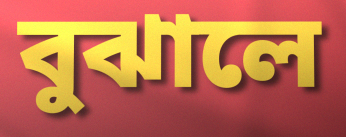
বুঝালে